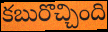
కబురొచ్చింది